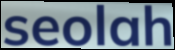
seolah